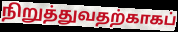
நிறுத்துவதற்காகப்